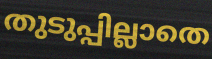
തുടുപ്പില്ലാതെ